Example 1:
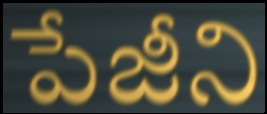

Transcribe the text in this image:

పేజీని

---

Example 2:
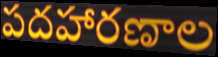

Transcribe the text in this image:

పదహారణాల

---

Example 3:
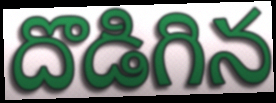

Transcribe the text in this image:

దొడిగిన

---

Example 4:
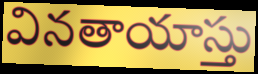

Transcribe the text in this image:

వినతాయాస్తు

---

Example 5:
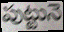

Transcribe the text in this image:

పుట్టునె